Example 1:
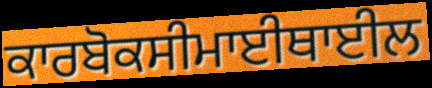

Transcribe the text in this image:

ਕਾਰਬੋਕਸੀਮਾਈਥਾਈਲ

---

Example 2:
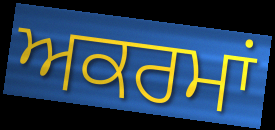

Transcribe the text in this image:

ਅਕਰਮਾਂ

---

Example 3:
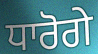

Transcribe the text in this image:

ਧਾਰੋਗੇ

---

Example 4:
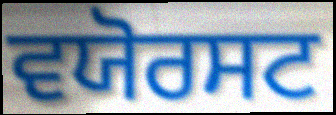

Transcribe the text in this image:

ਵਯੋਰਸਟ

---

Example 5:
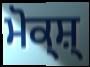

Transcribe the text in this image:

ਮੋਕ੍ਸ਼੍